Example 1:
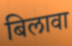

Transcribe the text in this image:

बिलावा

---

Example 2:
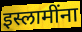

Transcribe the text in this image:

इस्लामींना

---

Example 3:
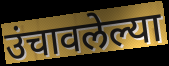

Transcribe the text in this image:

उंचावलेल्या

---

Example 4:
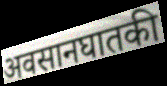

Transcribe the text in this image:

अवसानघातकी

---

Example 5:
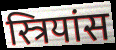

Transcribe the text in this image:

स्त्रियांस